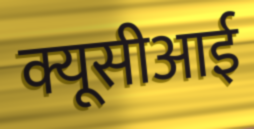
क्यूसीआई